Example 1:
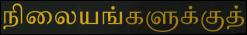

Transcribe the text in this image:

நிலையங்களுக்குத்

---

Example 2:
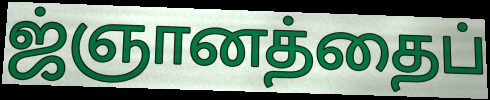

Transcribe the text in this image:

ஜ்ஞானத்தைப்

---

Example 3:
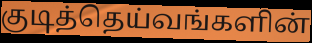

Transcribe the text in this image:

குடித்தெய்வங்களின்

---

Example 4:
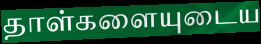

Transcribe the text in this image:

தாள்களையுடைய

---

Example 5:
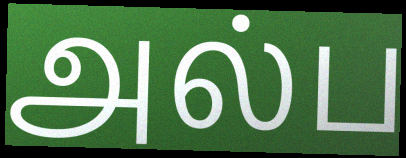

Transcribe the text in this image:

அல்ப